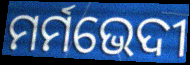
ମର୍ମଭେଦୀ